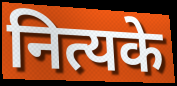
नित्यके